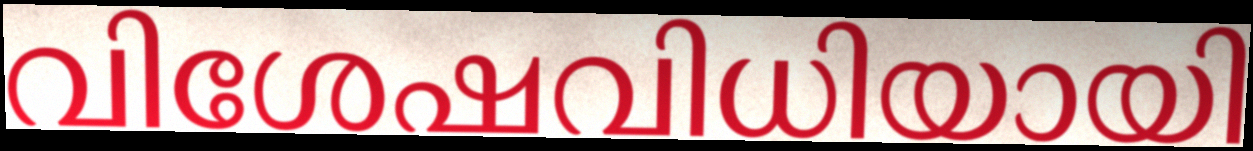
വിശേഷവിധിയായി